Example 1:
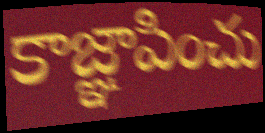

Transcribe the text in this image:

కాజ్ఞాపించు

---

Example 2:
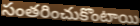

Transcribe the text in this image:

సంతరించుకొంటాయి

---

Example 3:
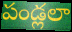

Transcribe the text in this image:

పండ్లలా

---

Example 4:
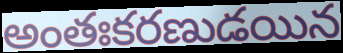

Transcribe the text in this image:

అంతఃకరణుడయిన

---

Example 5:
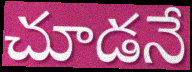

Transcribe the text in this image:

చూడనే